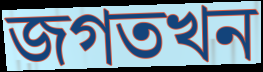
জগতখন